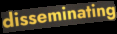
disseminating